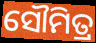
ସୌମିତ୍ର